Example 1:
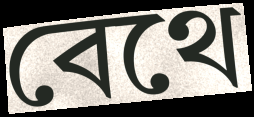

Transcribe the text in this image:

বেথে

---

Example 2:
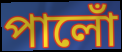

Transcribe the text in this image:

পালোঁ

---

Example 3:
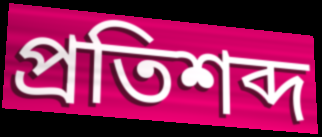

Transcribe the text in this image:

প্ৰতিশব্দ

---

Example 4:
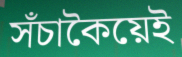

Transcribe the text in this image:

সঁচাকৈয়েই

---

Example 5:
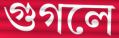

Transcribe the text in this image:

গুগলে